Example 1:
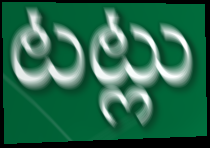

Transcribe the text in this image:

టట్లు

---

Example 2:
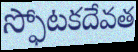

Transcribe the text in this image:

స్ఫోటకదేవత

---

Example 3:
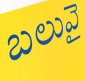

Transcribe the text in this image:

బలువై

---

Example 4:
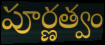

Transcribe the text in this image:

పూర్ణత్వం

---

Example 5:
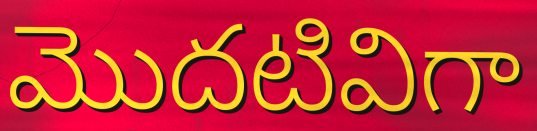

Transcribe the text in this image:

మొదటివిగా